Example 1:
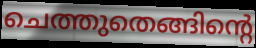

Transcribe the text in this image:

ചെത്തുതെങ്ങിന്റെ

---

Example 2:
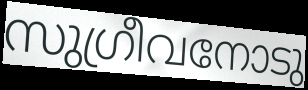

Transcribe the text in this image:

സുഗ്രീവനോടു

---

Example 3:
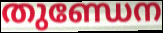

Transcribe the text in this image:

തുണ്ഡേന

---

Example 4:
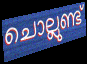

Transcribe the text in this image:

ചൊല്ലുണ്ട്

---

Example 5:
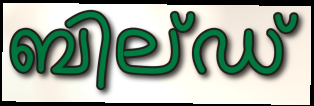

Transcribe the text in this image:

ബില്ഡ്